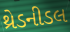
થ્રેડનીડલ